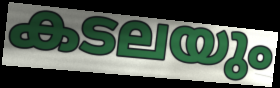
കടലയും